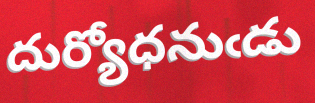
దుర్యోధనుఁడు